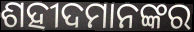
ଶହୀଦମାନଙ୍କର